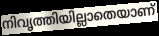
നിവൃത്തിയില്ലാതെയാണ്